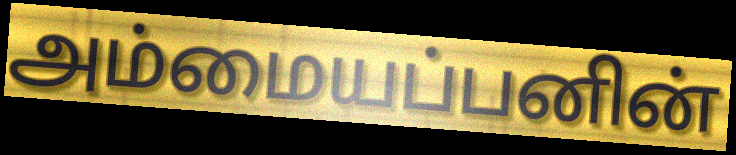
அம்மையப்பனின்